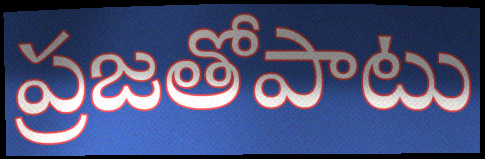
ప్రజతోపాటు